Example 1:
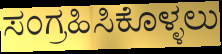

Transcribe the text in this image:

ಸಂಗ್ರಹಿಸಿಕೊಳ್ಳಲು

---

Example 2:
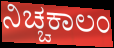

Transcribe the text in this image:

ನಿಚ್ಚಕಾಲಂ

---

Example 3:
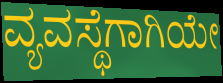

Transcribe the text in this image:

ವ್ಯವಸ್ಥೆಗಾಗಿಯೇ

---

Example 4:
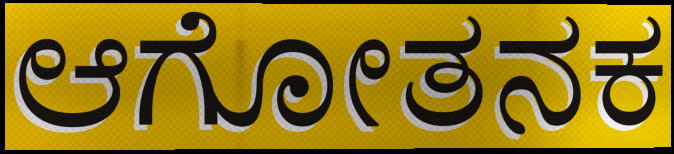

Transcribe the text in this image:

ಆಗೋತನಕ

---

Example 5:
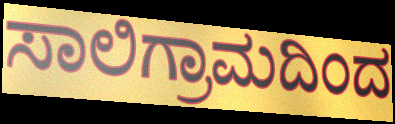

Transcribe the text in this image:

ಸಾಲಿಗ್ರಾಮದಿಂದ